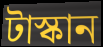
টাস্কান